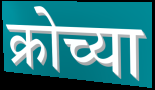
क्रोच्या